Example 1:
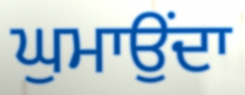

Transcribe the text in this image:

ਘੁਮਾਉਂਦਾ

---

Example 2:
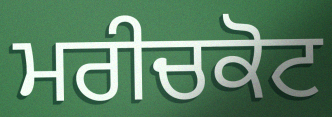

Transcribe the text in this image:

ਮਰੀਚਕੋਟ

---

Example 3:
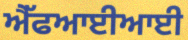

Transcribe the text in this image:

ਐੱਫਆਈਆਈ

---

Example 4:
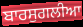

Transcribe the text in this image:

ਬਾਰਸੁਗਲੀਆ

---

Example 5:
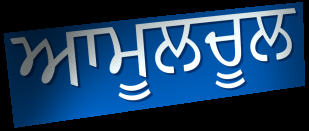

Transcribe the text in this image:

ਆਮੂਲਚੂਲ